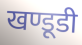
खण्डूडी